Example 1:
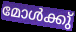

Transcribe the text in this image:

മോൾക്കു്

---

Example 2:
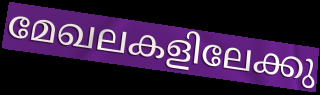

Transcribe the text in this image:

മേഖലകളിലേക്കു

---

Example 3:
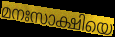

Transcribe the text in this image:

മനഃസാക്ഷിയെ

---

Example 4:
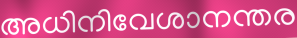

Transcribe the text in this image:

അധിനിവേശാനന്തര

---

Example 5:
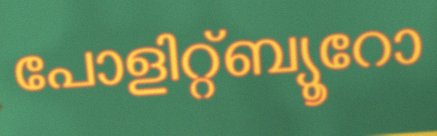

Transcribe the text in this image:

പോളിറ്റ്ബ്യൂറോ